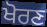
ਖੋਰਣ